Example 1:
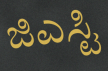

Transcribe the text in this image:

ಜಿಎಸ್ಟಿ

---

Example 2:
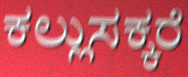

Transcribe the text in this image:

ಕಲ್ಲುಸಕ್ಕರೆ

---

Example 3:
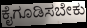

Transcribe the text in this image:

ಕೈಗೂಡಿಸಬೇಕು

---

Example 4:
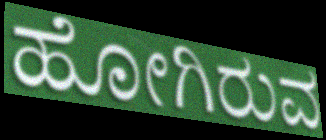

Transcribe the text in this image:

ಹೋಗಿರುವ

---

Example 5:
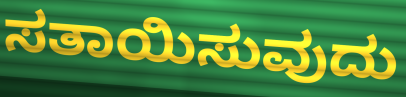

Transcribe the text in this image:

ಸತಾಯಿಸುವುದು